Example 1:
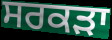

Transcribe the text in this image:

ਸਰਕੜਾ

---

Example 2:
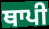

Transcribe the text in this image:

ਥਾਪੀ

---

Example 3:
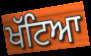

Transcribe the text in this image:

ਖੱਟਿਆ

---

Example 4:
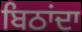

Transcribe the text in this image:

ਬਿਠਾਂਦਾ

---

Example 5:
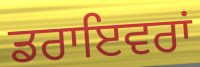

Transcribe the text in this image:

ਡਰਾਇਵਰਾਂ